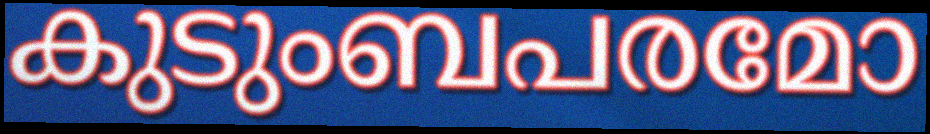
കുടുംബപരമോ